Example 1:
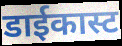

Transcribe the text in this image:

डाईकास्ट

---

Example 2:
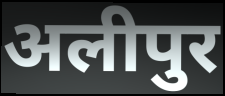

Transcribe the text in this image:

अलीपुर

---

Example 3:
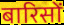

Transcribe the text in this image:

बारिसों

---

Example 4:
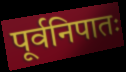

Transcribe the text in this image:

पूर्वनिपातः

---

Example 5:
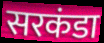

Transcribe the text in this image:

सरकंडा